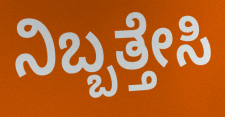
ನಿಬ್ಬತ್ತೇಸಿ